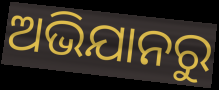
ଅଭିଯାନରୁ